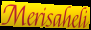
Merisaheli